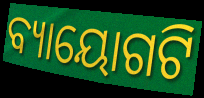
ବ୍ୟାୟୋଗଟି